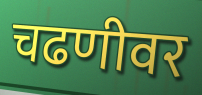
चढणीवर